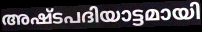
അഷ്ടപദിയാട്ടമായി